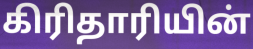
கிரிதாரியின்